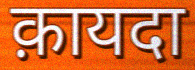
क़ायदा